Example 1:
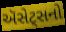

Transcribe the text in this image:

ઍસેટ્સનો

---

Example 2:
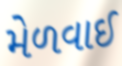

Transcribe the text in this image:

મેળવાઈ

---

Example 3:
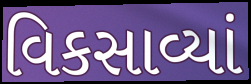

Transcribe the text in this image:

વિકસાવ્યાં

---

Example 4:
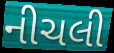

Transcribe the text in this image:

નીચલી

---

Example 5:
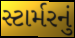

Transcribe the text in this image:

સ્ટાર્મરનું